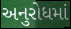
અનુરોધમાં